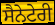
ਸੈਨੇਟੇਰੀ